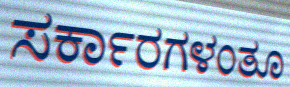
ಸರ್ಕಾರಗಳಂತೂ